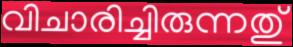
വിചാരിച്ചിരുന്നതു്